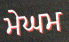
ਮੇਘਮ